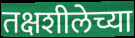
तक्षशीलेच्या